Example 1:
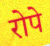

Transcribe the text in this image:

रोपे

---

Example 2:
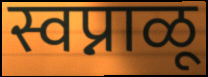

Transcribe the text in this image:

स्वप्नाळू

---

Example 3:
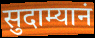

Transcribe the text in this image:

सुदाम्यानं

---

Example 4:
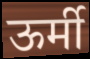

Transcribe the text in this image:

ऊर्मी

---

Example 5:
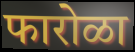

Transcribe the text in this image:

फारोळा